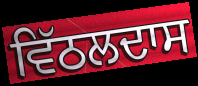
ਵਿੱਠਲਦਾਸ